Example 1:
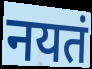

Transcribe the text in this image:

नयतं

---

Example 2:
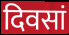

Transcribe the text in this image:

दिवसां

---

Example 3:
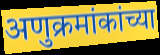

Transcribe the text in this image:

अणुक्रमांकांच्या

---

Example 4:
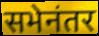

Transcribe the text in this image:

सभेनंतर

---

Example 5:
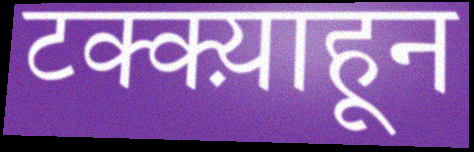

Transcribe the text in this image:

टक्क्य़ाहून